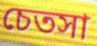
চেতসা